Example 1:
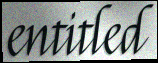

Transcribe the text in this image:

entitled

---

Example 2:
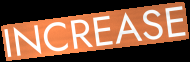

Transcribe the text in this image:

INCREASE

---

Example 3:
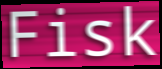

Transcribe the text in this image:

Fisk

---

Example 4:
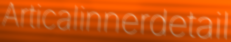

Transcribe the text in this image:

Articalinnerdetail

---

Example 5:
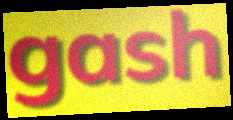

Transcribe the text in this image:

gash